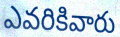
ఎవరికివారు